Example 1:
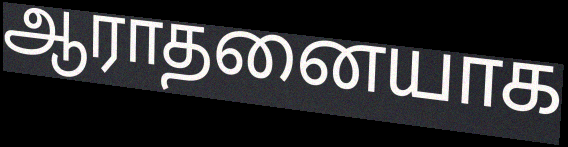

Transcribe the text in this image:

ஆராதனையாக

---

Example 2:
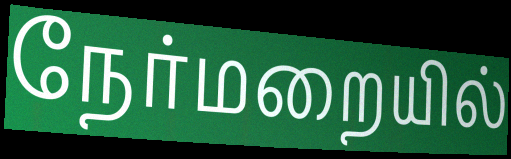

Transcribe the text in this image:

நேர்மறையில்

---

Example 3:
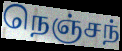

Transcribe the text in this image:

நெஞ்சந்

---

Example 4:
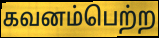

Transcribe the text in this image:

கவனம்பெற்ற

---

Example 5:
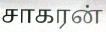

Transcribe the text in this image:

சாகரன்